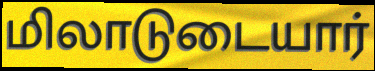
மிலாடுடையார்